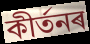
কীৰ্তনৰ